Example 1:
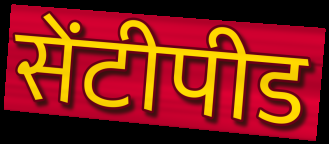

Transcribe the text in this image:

सेंटीपीड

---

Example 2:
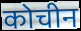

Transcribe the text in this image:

कोचीन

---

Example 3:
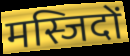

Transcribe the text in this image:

मस्‍जिदों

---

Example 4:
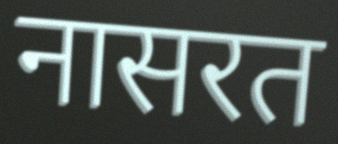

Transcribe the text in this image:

नासरत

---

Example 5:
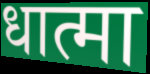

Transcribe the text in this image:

धात्मा